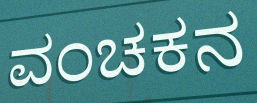
ವಂಚಕನ